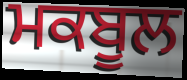
ਮਕਬੂਲ